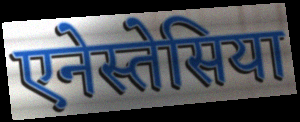
एनेस्तेसिया